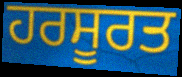
ਹਰਸੂਰਤ